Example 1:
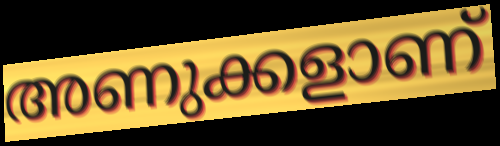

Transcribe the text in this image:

അണുക്കളാണ്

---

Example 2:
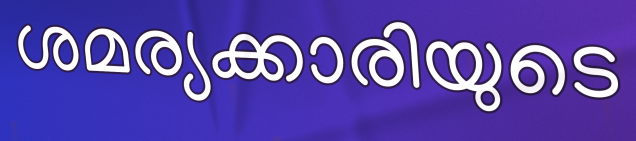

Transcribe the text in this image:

ശമര്യക്കാരിയുടെ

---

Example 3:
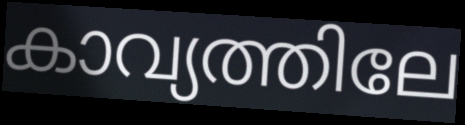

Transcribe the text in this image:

കാവ്യത്തിലേ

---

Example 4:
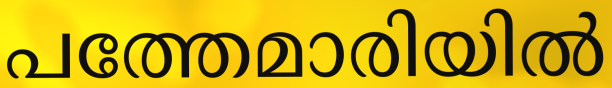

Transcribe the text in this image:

പത്തേമാരിയിൽ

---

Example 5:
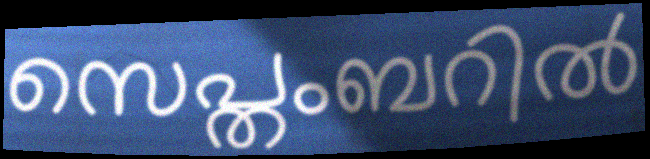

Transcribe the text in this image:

സെപ്തംബറിൽ